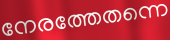
നേരത്തേതന്നെ